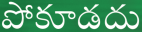
పోకూడదు